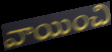
వాయించి